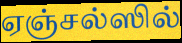
ஏஞ்சல்ஸில்